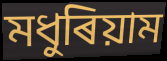
মধুৰিয়াম